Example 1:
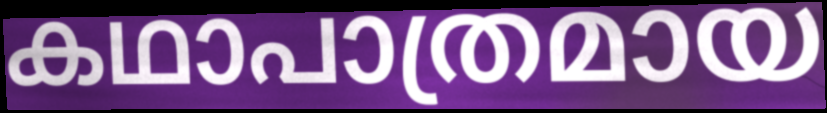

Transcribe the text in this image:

കഥാപാത്രമായ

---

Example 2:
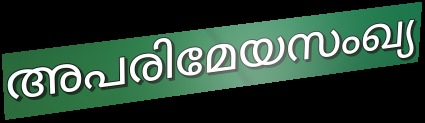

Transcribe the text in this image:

അപരിമേയസംഖ്യ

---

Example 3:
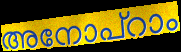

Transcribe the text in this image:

അനോപ്റാം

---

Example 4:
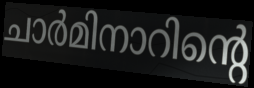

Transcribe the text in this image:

ചാർമിനാറിന്റെ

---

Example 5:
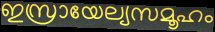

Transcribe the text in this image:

ഇസ്രായേല്യസമൂഹം